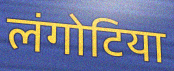
लंगोटिया